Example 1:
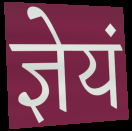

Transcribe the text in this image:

ज्ञेयं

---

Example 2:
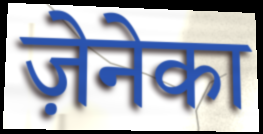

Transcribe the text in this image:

ज़ेनेका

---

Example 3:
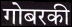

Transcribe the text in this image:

गोबरकी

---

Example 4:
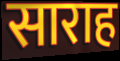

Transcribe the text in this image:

साराह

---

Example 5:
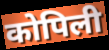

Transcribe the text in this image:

कोपिली